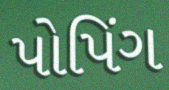
પોપિંગ